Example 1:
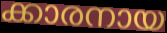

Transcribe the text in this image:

ക്കാരനായ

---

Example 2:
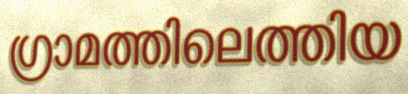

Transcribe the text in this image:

ഗ്രാമത്തിലെത്തിയ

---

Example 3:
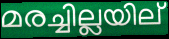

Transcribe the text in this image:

മരച്ചില്ലയില്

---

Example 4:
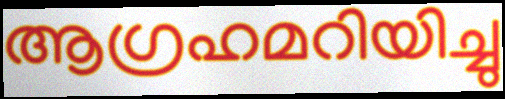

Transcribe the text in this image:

ആഗ്രഹമറിയിച്ചു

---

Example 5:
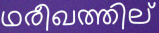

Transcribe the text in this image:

ഥരീഖത്തില്